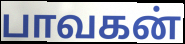
பாவகன்